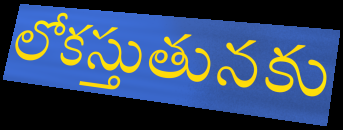
లోకస్తుతునకు